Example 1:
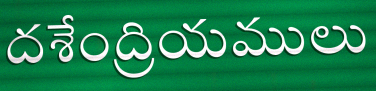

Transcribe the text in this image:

దశేంద్రియములు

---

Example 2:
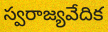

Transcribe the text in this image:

స్వరాజ్యవేదిక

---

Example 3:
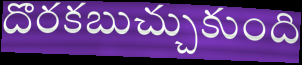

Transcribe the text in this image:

దొరకబుచ్చుకుంది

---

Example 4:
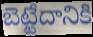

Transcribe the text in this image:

బెట్టేదానికి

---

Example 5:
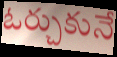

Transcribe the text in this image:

ఓర్చుకునే